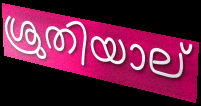
ശ്രുതിയാല്